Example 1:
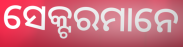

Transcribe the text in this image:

ସେକ୍ଟରମାନେ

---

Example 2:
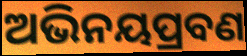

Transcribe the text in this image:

ଅଭିନୟପ୍ରବଣ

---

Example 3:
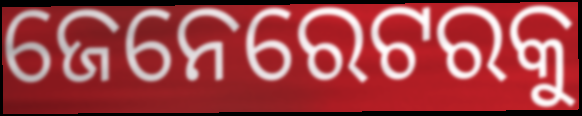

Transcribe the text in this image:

ଜେନେରେଟରକୁ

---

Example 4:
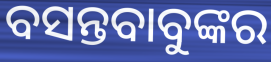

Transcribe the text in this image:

ବସନ୍ତବାବୁଙ୍କର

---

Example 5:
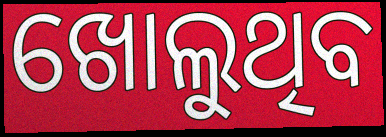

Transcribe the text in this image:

ଖୋଲୁଥିବ